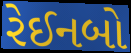
રેઈનબો